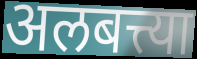
अलबत्त्या